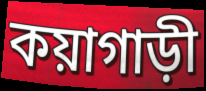
কয়াগাড়ী